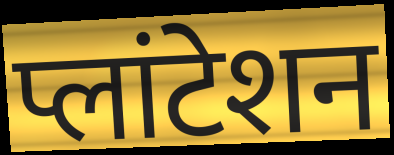
प्लांटेशन